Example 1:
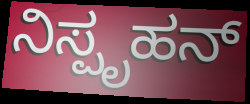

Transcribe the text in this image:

ನಿಸ್ಪೃಹನ್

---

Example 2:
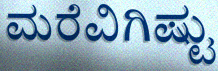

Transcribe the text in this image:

ಮರೆವಿಗಿಷ್ಟು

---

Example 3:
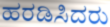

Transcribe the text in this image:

ಹರಡಿಸಿದರು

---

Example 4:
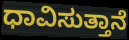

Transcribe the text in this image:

ಧಾವಿಸುತ್ತಾನೆ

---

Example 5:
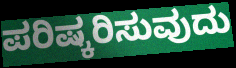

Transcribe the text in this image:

ಪರಿಷ್ಕರಿಸುವುದು